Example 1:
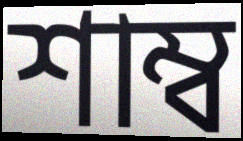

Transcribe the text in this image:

শাম্ব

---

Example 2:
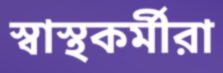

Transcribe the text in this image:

স্বাস্থকর্মীরা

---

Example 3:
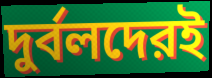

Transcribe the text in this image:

দুর্বলদেরই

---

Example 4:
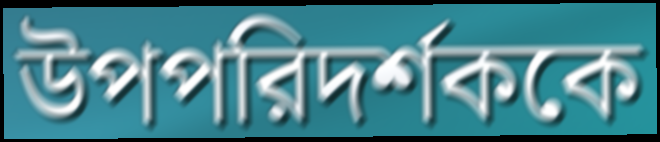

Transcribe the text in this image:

উপপরিদর্শককে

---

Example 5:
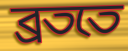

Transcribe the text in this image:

ব্রততে